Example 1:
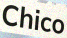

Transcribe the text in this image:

Chico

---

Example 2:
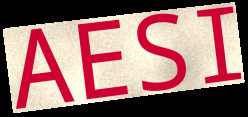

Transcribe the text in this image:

AESI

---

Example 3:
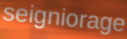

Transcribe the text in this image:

seigniorage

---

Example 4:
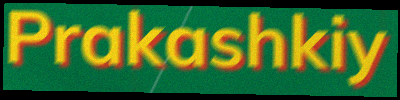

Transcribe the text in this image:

Prakashkiy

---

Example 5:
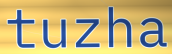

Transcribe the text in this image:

tuzha